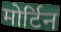
मोर्टिन